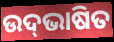
ଉଦ୍‍ଭାଷିତ